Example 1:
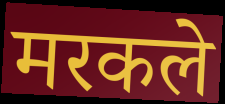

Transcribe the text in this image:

मरकले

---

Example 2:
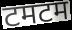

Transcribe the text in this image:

टमटम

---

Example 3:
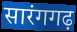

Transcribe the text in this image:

सारंगगढ़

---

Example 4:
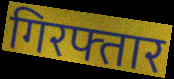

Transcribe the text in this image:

गिरफ्‍तार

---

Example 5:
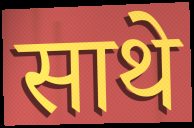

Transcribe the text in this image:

साथे